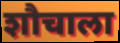
शौचाला